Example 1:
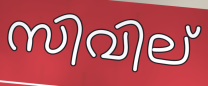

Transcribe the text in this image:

സിവില്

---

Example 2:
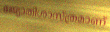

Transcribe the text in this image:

ജ്യോതിശാസ്ത്രമാണ്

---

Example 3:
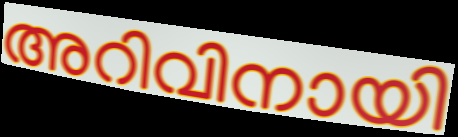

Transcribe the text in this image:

അറിവിനായി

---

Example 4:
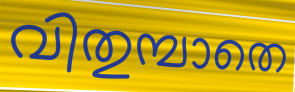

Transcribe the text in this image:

വിതുമ്പാതെ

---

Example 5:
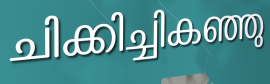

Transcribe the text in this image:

ചിക്കിച്ചികഞ്ഞു